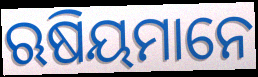
ଋଷିୟମାନେ